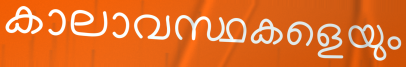
കാലാവസ്ഥകളെയും